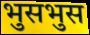
भुसभुस